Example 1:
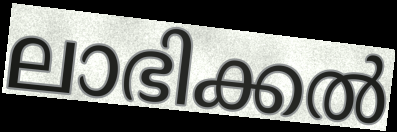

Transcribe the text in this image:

ലാഭിക്കൽ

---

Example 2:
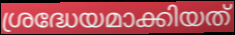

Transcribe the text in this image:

ശ്രദ്ധേയമാക്കിയത്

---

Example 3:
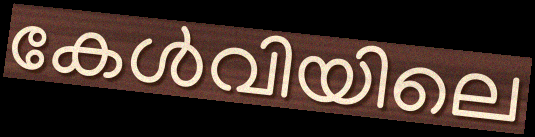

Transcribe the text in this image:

കേൾവിയിലെ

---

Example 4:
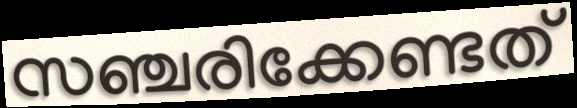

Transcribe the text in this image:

സഞ്ചരിക്കേണ്ടത്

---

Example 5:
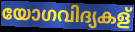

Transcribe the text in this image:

യോഗവിദ്യകള്